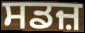
ਸਡਜ਼